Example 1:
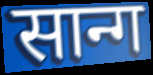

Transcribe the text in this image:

सान्ग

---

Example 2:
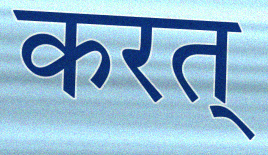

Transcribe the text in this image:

करत्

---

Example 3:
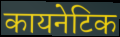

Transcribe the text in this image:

कायनेटिक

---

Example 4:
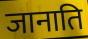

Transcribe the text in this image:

जानाति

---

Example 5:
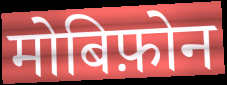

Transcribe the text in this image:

मोबिफ़ोन